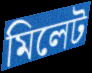
মিলেট